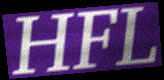
HFL